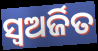
ସ୍ୱଅର୍ଜିତ